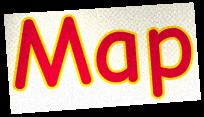
Map